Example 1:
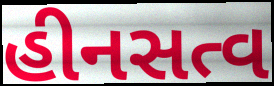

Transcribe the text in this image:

હીનસત્વ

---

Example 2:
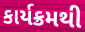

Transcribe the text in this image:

કાર્યક્રમથી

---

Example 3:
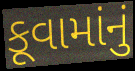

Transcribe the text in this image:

કૂવામાંનું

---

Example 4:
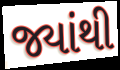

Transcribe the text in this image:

જ્યાંથી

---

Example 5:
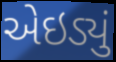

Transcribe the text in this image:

એઇડ્યું